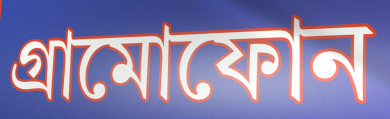
গ্ৰামোফোন